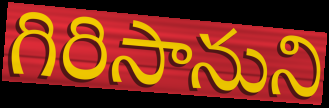
గిరిసానుని